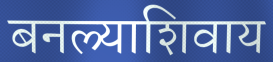
बनल्याशिवाय